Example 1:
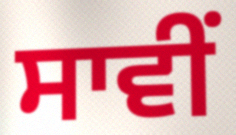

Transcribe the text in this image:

ਸਾਵੀਂ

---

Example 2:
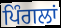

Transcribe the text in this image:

ਪਿੰਗਲਾਂ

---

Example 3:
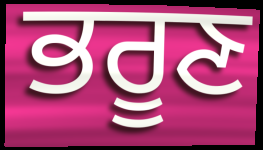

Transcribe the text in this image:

ਭਰੂਣ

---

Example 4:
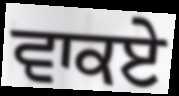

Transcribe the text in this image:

ਵਾਕਏ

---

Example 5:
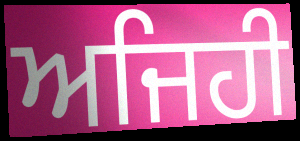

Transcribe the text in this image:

ਅਜਿਹੀ